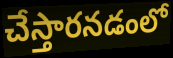
చేస్తారనడంలో